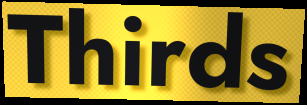
Thirds